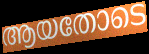
ആയതോടെ